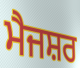
ਮੈਜਸ਼ਰ